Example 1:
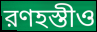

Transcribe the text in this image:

রণহস্তীও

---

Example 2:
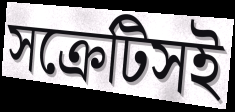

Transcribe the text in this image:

সক্রেটিসই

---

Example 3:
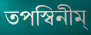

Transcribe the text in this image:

তপস্বিনীম্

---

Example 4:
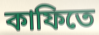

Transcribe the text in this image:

কাফিতে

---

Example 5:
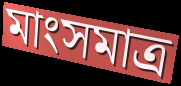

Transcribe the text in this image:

মাংসমাত্র